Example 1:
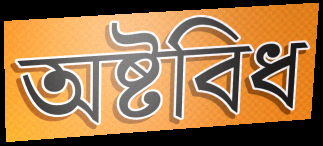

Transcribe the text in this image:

অষ্টবিধ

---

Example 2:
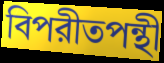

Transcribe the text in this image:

বিপরীতপন্থী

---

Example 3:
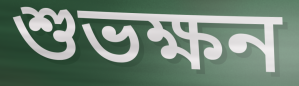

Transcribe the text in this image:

শুভক্ষন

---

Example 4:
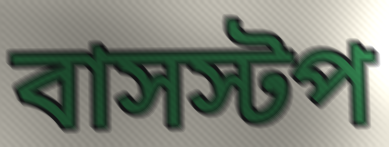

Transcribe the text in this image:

বাসস্টপ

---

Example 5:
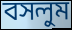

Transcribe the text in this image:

বসলুম